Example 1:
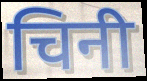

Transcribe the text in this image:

चिनी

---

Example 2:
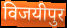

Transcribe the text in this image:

विजयीपुर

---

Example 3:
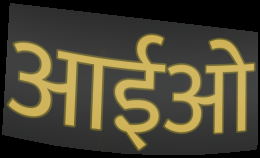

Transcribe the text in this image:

आईओ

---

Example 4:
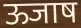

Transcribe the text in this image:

ऊजाष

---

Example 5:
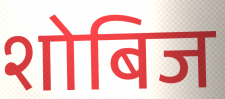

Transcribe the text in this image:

शोबिज